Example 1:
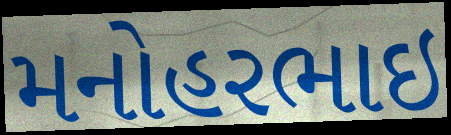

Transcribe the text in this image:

મનોહરભાઇ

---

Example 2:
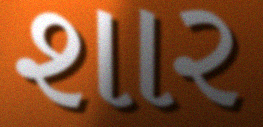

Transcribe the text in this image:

શાર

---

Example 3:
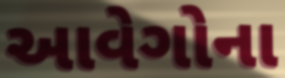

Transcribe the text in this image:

આવેગોના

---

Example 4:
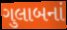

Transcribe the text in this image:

ગુલાબનાં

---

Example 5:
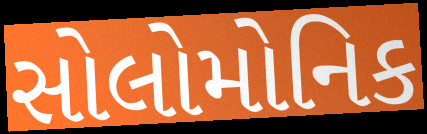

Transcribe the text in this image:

સોલોમોનિક